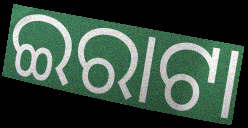
ଇରାଟା